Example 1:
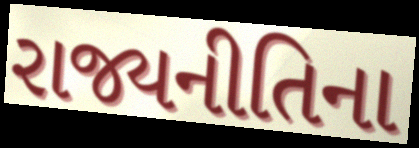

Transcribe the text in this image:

રાજ્યનીતિના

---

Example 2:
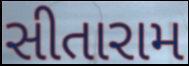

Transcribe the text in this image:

સીતારામ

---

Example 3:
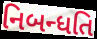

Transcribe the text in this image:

નિબન્ધતિ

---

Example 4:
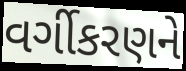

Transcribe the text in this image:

વર્ગીકરણને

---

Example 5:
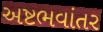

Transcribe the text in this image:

અષ્ટભવાંતર